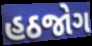
હઠજોગ